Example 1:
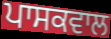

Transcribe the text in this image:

ਪਾਸਕਵਾਲ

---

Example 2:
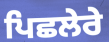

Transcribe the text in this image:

ਪਿਛਲੇਰੇ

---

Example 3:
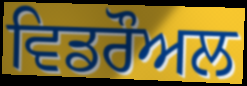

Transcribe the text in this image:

ਵਿਡਰੌਅਲ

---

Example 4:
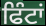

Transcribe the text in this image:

ਫਿੰਟਾਂ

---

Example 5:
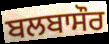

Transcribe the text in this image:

ਬਲਬਾਸੌਰ